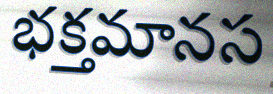
భక్తమానస